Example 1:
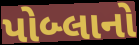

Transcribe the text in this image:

પોબ્લાનો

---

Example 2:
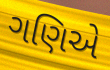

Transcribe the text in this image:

ગણિએ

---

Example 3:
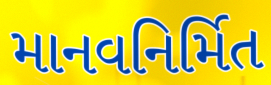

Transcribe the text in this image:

માનવનિર્મિત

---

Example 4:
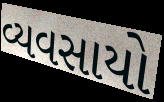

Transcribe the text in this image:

વ્યવસાયો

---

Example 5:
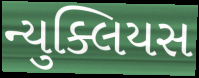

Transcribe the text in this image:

ન્યુક્લિયસ